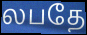
லபதே